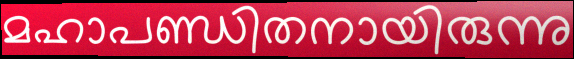
മഹാപണ്ഡിതനായിരുന്നു